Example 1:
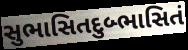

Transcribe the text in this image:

સુભાસિતદુબ્ભાસિતં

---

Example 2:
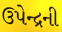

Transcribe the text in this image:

ઉપેન્દ્રની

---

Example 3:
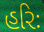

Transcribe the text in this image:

હરિઃ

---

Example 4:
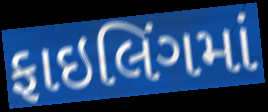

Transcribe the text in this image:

ફાઇલિંગમાં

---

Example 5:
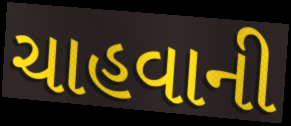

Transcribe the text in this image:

ચાહવાની